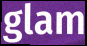
glam